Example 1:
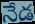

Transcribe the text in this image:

నేడ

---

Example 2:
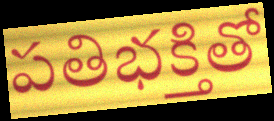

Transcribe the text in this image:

పతిభక్తితో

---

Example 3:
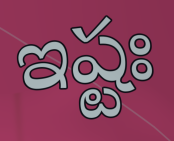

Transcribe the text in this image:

ఇష్టః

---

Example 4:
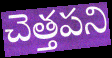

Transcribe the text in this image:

చెత్తపని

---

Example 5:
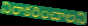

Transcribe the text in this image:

నిరాకరించాలని